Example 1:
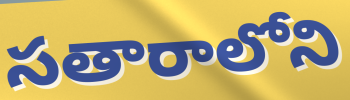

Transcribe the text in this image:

సతారాలోని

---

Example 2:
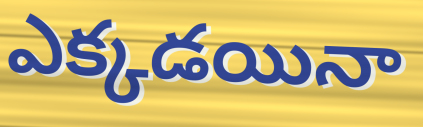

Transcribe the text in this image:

ఎక్కడయినా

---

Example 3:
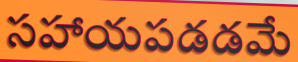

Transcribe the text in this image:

సహాయపడడమే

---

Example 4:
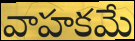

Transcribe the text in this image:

వాహకమే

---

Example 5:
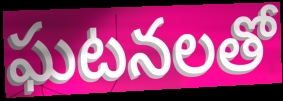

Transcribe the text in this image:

ఘటనలతో